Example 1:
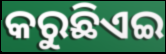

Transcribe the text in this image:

କରୁଛିଏଇ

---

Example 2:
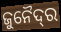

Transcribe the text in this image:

ଜୁନୈଦ୍‌ର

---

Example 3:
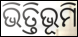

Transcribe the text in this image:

ଭିତ୍ତିଭୂମି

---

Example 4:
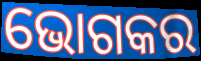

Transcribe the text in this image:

ଭୋଗକର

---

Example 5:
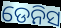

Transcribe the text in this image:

ଡେନିସ